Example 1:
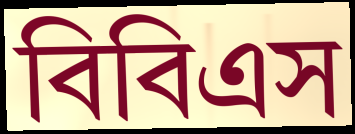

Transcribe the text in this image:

বিবিএস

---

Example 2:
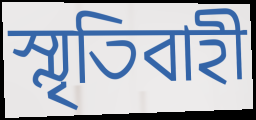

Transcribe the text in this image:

স্মৃতিবাহী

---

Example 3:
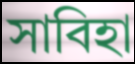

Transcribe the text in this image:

সাবিহা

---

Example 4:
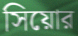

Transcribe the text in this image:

সিয়োর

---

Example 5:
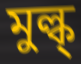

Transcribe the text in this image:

মুল্ক্